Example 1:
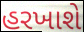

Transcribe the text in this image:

હરખાશે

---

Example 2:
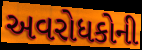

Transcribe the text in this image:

અવરોધકોની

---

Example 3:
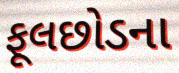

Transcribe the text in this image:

ફૂલછોડના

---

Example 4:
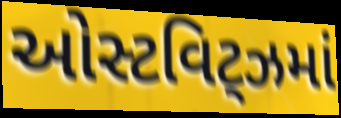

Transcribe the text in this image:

ઓસ્ટવિટ્ઝમાં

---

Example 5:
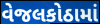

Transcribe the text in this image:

વેજલકોઠામાં